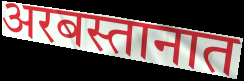
अरबस्तानात